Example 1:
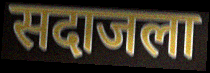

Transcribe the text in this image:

सदाजला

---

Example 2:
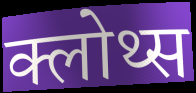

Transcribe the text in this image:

क्लोथ्स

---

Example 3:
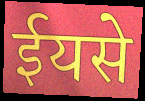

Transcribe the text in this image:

ईयसे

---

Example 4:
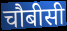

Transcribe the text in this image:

चौबीसी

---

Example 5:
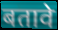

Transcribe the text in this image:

बतावे